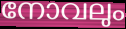
നോവലും